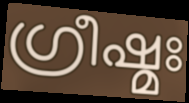
ഗ്രീഷ്മഃ